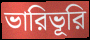
ভারিভূরি